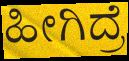
ಹೀಗಿದ್ರೆ